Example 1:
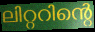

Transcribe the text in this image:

ലിറ്ററിന്റെ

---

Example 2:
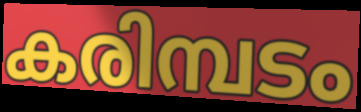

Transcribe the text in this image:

കരിമ്പടം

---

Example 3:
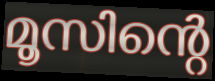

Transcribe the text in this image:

മൂസിന്റെ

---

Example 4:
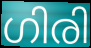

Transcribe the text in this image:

ഗിരി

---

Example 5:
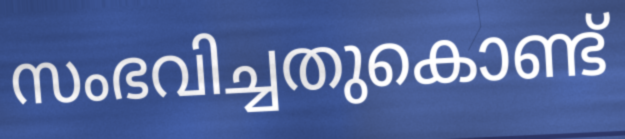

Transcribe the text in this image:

സംഭവിച്ചതുകൊണ്ട്